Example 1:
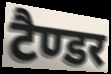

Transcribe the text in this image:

टैण्डर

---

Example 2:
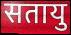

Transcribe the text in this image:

सतायु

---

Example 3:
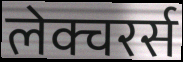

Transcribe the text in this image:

लेक्चरर्स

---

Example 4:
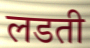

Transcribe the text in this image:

लडती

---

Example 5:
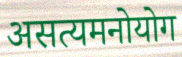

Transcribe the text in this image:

असत्यमनोयोग